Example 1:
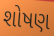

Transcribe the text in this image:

શોષણ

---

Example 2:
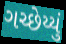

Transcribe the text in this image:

ગચ્છેય્યું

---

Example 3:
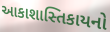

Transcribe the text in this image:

આકાશાસ્તિકાયનો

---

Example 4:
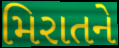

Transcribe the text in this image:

મિરાતને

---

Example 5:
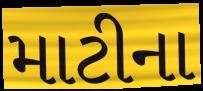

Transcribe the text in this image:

માટીના